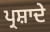
ਪ੍ਰਸ਼ਾਦੇ